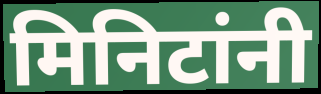
मिनिटांनी